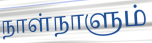
நாள்நாளும்